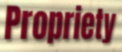
Propriety